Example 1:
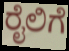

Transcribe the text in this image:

ರೈಲಿಗೆ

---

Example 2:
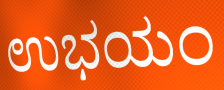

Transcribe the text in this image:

ಉಭಯಂ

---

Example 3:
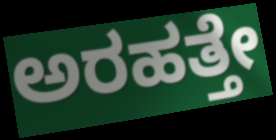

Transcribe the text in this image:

ಅರಹತ್ತೇ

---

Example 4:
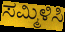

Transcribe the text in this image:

ಸಮ್ಮಿಳಿಸಿ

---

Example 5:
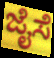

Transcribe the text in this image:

ಜೈಸೆ